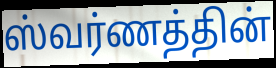
ஸ்வர்ணத்தின்